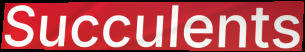
Succulents